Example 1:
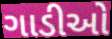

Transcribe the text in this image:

ગાડીઓ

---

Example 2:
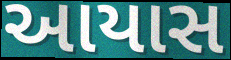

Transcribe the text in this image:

આયાસ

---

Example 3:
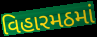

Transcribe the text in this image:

વિહારમઠમાં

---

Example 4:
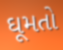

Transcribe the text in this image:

ઘૂમતો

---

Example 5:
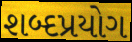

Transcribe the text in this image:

શબ્દપ્રયોગ